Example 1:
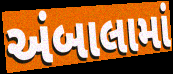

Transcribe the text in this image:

અંબાલામાં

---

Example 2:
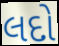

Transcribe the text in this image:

લદો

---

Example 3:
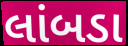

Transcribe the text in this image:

લાંબડા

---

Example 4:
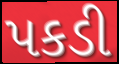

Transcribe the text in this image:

પકડી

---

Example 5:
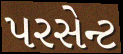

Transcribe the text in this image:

પરસેન્ટ